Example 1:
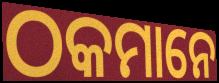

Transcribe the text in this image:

ଠକମାନେ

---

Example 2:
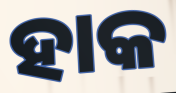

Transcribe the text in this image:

ହାକ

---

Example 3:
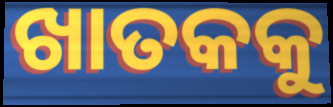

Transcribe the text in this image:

ଖାତକକୁ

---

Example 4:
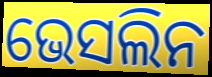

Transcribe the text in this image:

ଭେସଲିନ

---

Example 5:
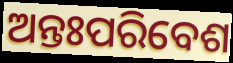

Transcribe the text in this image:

ଅନ୍ତଃପରିବେଶ